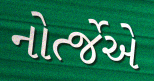
નોર્ત્જેએ